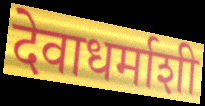
देवाधर्माशी